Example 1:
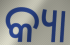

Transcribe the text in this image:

କ୍ୟା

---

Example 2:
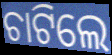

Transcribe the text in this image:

ଚାଟିଲେ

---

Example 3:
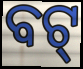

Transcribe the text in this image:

ବଟ୍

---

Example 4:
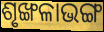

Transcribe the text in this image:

ଶୃଙ୍ଖଳାଭଙ୍ଗ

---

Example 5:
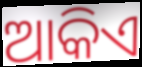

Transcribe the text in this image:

ଆକିଏ